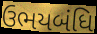
ઉભયબંધિ